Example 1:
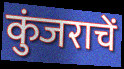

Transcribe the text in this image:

कुंजराचें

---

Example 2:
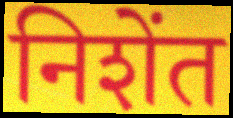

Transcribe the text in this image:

निशेंत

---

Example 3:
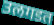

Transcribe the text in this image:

उलगडत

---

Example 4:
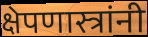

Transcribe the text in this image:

क्षेपणास्त्रांनी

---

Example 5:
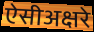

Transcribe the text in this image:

ऐसीअक्षरे